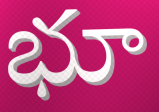
భూ